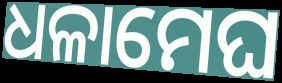
ଧଳାମେଘ